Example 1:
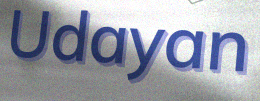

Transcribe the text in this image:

Udayan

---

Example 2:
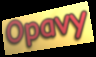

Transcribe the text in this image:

Opavy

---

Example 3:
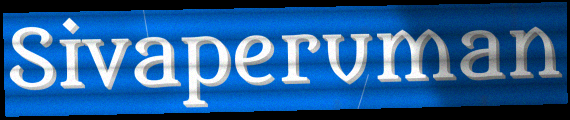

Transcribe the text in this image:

Sivaperuman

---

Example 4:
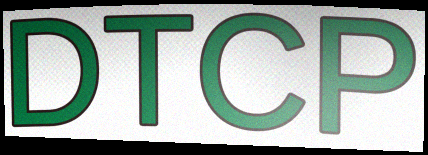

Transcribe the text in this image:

DTCP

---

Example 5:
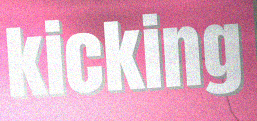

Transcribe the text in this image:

kicking